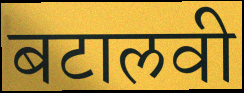
बटालवी